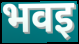
भवइ